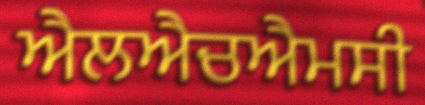
ਐਲਐਚਐਮਸੀ